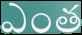
ఎంత